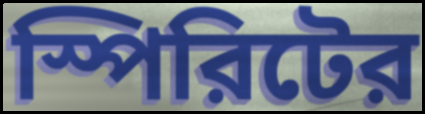
স্পিরিটের